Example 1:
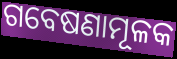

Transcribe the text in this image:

ଗବେଷଣାମୂଳକ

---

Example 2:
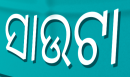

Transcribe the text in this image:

ସାଉଟା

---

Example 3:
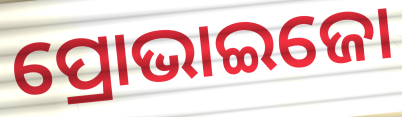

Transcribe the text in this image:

ପ୍ରୋଭାଇଜୋ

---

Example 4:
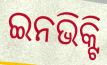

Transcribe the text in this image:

ଇନଭିକ୍ଟି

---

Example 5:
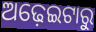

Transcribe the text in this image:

ଅଢ଼େଇଟାରୁ